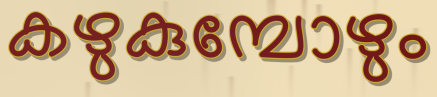
കഴുകുമ്പോഴും